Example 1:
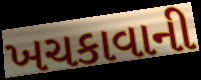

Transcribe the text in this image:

ખચકાવાની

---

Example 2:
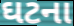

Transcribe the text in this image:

ઘટના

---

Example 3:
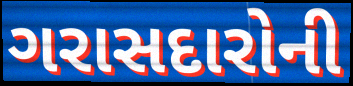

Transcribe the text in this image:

ગરાસદારોની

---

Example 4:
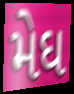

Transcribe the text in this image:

મેઘ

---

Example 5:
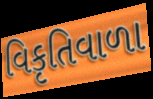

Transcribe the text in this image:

વિકૃતિવાળા